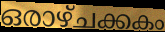
ഒരാഴ്ചക്കകം